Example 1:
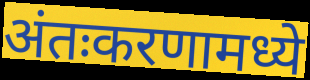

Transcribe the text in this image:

अंतःकरणामध्ये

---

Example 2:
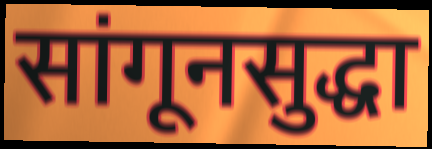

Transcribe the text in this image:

सांगूनसुद्धा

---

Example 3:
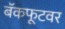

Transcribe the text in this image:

बॅकफूटवर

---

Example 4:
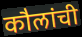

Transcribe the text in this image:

कौलांची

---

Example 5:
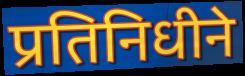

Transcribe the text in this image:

प्रतिनिधीने